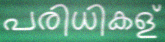
പരിധികള്